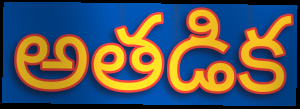
అతడిక